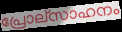
പ്രോല്സാഹനം